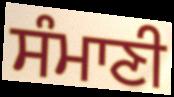
ਸੰਮਾਣੀ